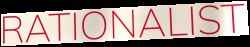
RATIONALIST